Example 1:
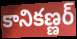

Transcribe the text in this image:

కానికణ్ణర్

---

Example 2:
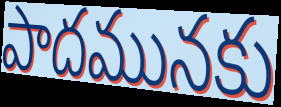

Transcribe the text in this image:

పాదమునకు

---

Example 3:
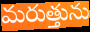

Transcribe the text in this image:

మరుత్తును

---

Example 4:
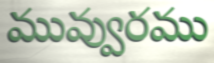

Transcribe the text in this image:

మువ్వురము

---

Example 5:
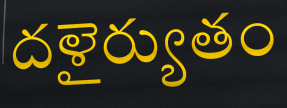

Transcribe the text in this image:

దళైర్యుతం